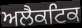
ਅਲੈਕਟਿਕ